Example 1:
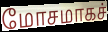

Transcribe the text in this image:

மோசமாகச்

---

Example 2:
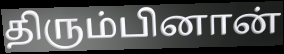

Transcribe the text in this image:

திரும்பினான்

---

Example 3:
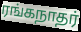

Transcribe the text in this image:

ரங்கநாதர்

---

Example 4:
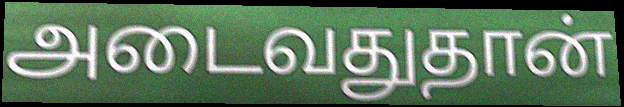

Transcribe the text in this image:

அடைவதுதான்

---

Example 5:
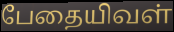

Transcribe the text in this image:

பேதையிவள்